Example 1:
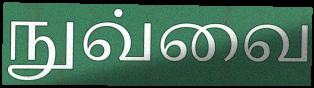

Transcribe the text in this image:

நுவ்வை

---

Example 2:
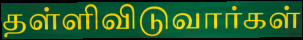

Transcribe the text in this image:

தள்ளிவிடுவார்கள்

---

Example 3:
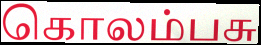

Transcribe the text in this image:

கொலம்பசு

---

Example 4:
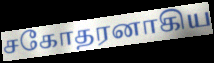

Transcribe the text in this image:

சகோதரனாகிய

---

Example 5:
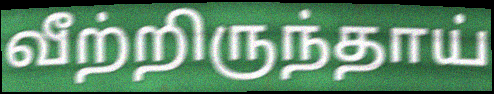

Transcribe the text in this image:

வீற்றிருந்தாய்